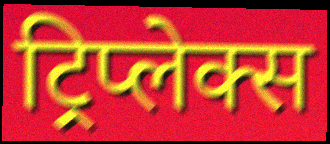
ट्रिप्लेक्स